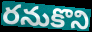
రనుకొని